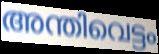
അന്തിവെട്ടം